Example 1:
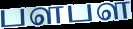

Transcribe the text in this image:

பளபள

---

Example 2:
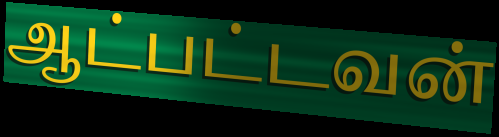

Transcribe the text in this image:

ஆட்பட்டவன்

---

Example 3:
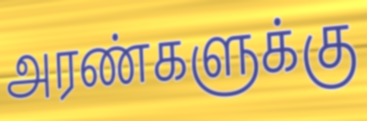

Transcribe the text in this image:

அரண்களுக்கு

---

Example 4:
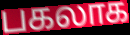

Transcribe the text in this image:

பகலாக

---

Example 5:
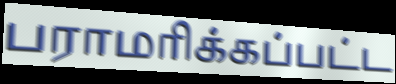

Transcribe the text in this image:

பராமரிக்கப்பட்ட